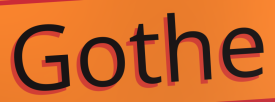
Gothe